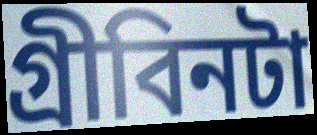
গ্রীবিনটা